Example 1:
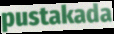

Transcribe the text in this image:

pustakada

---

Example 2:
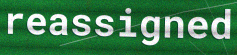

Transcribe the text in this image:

reassigned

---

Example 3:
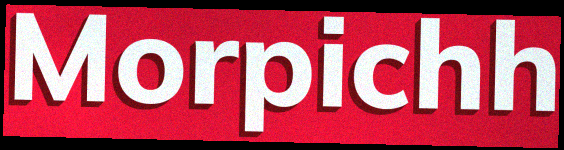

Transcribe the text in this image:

Morpichh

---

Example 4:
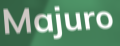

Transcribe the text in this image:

Majuro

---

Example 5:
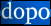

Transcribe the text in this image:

dopo